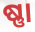
ଷ୍ଣା